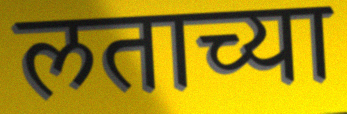
लताच्या